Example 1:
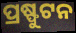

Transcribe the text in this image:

ପ୍ରଷ୍ଫୁଟନ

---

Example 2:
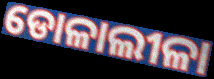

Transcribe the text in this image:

ଡୋଳାଲୀଳା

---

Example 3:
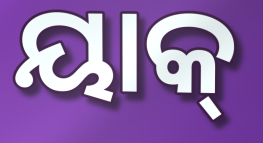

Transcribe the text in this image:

ୟାକ୍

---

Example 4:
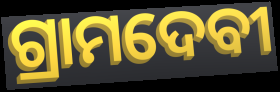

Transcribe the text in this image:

ଗ୍ରାମଦେବୀ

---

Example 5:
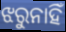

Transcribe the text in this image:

ଝରୁନାହିଁ